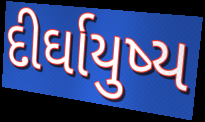
દીર્ઘાયુષ્ય